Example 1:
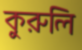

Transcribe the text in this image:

কুৰুলি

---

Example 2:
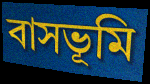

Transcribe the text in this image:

বাসভূমি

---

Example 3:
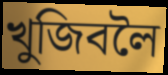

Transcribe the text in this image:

খুজিবলৈ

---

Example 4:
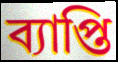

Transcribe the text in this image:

ব্যাপ্তি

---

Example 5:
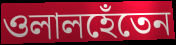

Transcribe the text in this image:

ওলালহেঁতেন